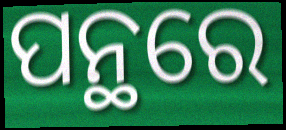
ପନ୍ଥରେ